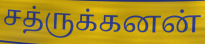
சத்ருக்கனன்